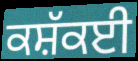
ਕਸ਼ੱਕਈ